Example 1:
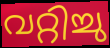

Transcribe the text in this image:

വറ്റിച്ചു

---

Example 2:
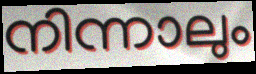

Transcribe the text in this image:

നിന്നാലും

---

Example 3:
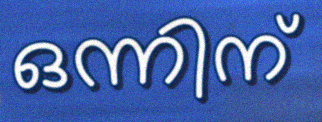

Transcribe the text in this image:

ഒന്നിന്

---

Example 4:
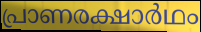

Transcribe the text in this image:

പ്രാണരക്ഷാർഥം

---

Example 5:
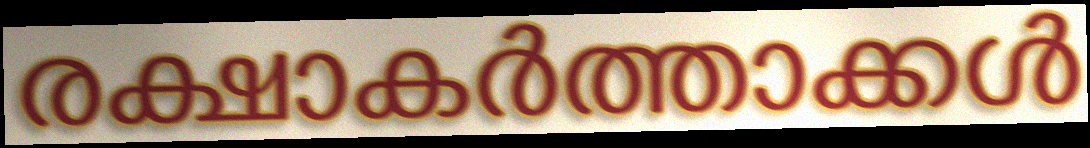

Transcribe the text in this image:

രക്ഷാകർത്താക്കൾ